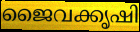
ജൈവക്കൃഷി